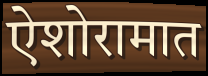
ऐशोरामात